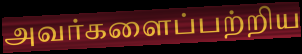
அவர்களைப்பற்றிய